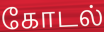
கோடல்